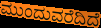
ಮುಂದುವರೆದಿದೆ